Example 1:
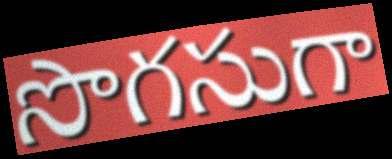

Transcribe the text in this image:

సొగసుగా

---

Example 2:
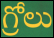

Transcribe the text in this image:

గ్రోలు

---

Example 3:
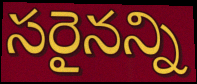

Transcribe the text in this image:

సరైనన్ని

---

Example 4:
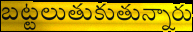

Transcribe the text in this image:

బట్టలుతుకుతున్నారు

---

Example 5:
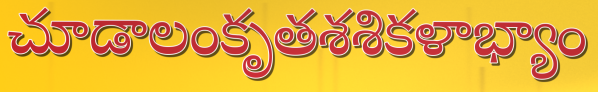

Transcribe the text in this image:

చూడాలంకృతశశికళాభ్యాం